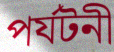
পর্যটনী